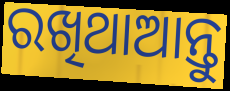
ରଖିଥାଆନ୍ତୁ